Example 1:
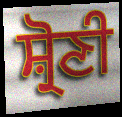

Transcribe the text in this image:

ਸ਼੍ਰੋਣੀ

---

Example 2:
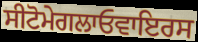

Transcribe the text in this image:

ਸੀਟੋਮੇਗਲਾਓਵਾਇਰਸ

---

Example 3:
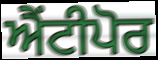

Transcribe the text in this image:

ਐਂਟੀਪੋਰ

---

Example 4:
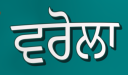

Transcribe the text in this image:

ਵਰੋਲਾ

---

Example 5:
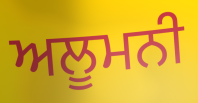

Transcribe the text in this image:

ਅਲੂਮਨੀ